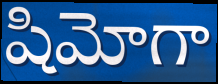
షిమోగా